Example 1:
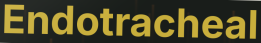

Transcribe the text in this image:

Endotracheal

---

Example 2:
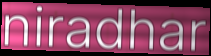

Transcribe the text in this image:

niradhar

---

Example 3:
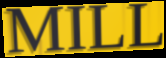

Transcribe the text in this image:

MILL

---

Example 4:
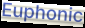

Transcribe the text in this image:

Euphonic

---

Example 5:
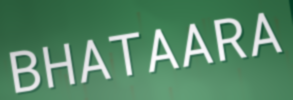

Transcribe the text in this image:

BHATAARA